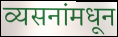
व्यसनांमधून